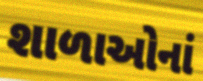
શાળાઓનાં